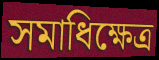
সমাধিক্ষেত্ৰ